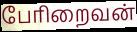
பேரிறைவன்